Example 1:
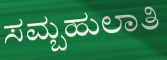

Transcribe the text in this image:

ಸಮ್ಬಹುಲಾತಿ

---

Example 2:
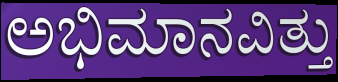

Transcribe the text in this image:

ಅಭಿಮಾನವಿತ್ತು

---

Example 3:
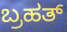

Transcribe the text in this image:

ಬ್ರಹತ್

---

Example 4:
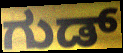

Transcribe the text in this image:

ಗುಡ್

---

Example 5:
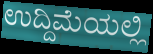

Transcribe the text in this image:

ಉದ್ದಿಮೆಯಲ್ಲಿ